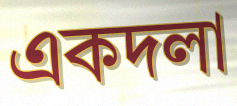
একদলা